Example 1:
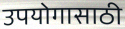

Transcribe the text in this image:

उपयोगासाठी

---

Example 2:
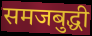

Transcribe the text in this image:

समजबुद्धी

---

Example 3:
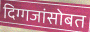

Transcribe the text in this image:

दिग्गजांसोबत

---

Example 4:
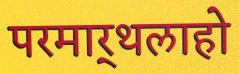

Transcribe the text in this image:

परमार्थलाहो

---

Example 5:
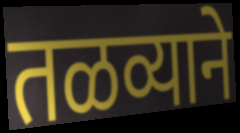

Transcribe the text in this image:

तळव्याने